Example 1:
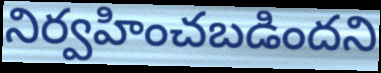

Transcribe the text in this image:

నిర్వహించబడిందని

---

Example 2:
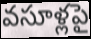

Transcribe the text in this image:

వసూళ్లపై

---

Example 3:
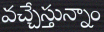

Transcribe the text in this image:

వచ్చేస్తున్నాం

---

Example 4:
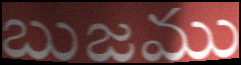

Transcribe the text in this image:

బుజము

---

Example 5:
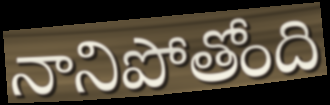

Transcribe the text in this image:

నానిపోతోంది